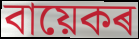
বায়েকৰ